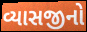
વ્યાસજીનો